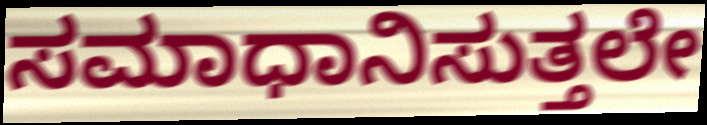
ಸಮಾಧಾನಿಸುತ್ತಲೇ